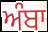
ਅੰਬਾ